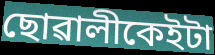
ছোৱালীকেইটা